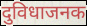
दुविधाजनक